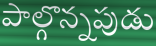
పాల్గొన్నపుడు